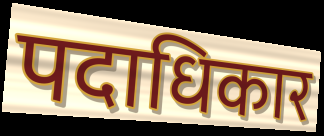
पदाधिकार